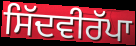
ਸਿੱਦਵੀਰੱਪਾ